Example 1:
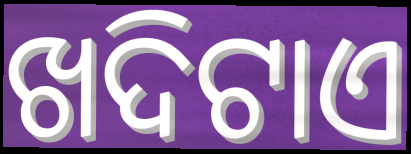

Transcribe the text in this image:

ଖଦିଟାଏ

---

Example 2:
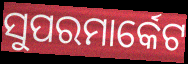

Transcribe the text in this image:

ସୁପରମାର୍କେଟ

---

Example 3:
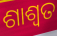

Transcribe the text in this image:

ଶାଶ୍ଵତ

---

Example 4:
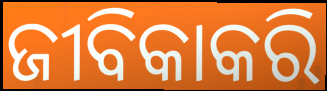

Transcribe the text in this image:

ଜୀବିକାକରି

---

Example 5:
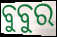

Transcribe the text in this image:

ବୁବୁର